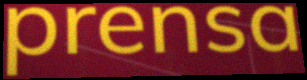
prensa